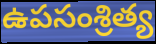
ఉపసంశ్రిత్య